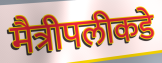
मैत्रीपलीकडे